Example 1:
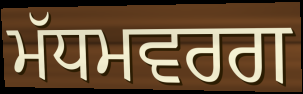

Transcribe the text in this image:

ਮੱਧਮਵਰਗ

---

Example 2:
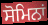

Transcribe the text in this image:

ਸੋਮਿਨਾਂ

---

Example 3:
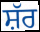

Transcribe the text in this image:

ਸ਼ੱਰ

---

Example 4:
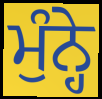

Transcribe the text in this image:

ਮੁੰਨ੍ਹੇ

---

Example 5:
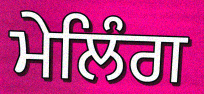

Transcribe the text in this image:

ਮੇਲਿੰਗ